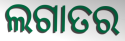
ଲଗାତର